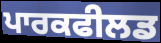
ਪਾਰਕਫੀਲਡ